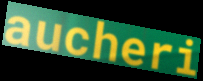
aucheri